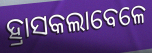
ହ୍ରାସକଲାବେଳେ